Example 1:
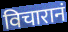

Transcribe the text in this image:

विचारानं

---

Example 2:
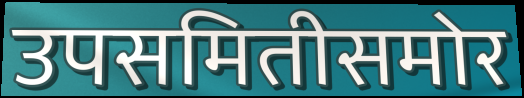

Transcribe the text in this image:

उपसमितीसमोर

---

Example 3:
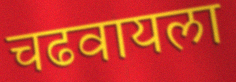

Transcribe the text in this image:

चढवायला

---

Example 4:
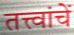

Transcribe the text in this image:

तत्त्वांचें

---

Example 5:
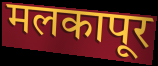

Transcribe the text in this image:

मलकापूर